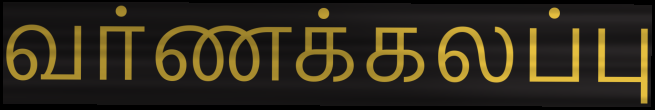
வர்ணக்கலப்பு